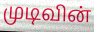
முடிவின்